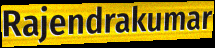
Rajendrakumar